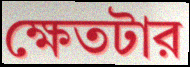
ক্ষেতটার